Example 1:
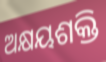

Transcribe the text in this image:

ଅକ୍ଷୟଶକ୍ତି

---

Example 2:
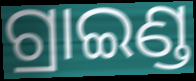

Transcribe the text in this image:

ଗ୍ରାଇଣ୍ଡ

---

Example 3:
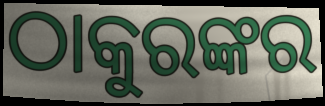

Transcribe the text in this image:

ଠାକୁରଙ୍କର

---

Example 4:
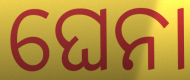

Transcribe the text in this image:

ଘେନା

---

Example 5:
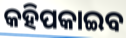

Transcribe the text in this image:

କହିପକାଇବ